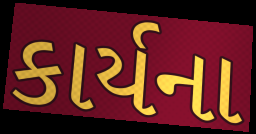
કાર્યના